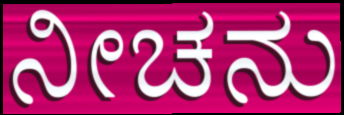
ನೀಚನು